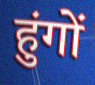
हुंगों